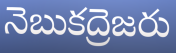
నెబుకద్రెజరు